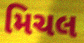
મિચલ